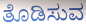
ತೊಡಿಸುವ